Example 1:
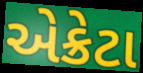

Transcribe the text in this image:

એક્રેટા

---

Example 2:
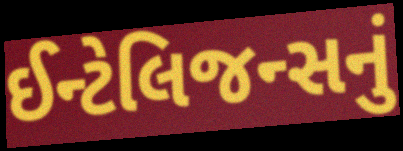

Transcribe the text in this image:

ઈન્ટેલિજન્સનું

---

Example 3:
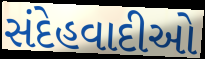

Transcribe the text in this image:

સંદેહવાદીઓ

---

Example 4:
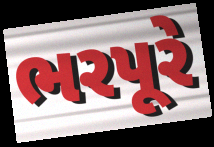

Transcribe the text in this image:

ભરપૂરે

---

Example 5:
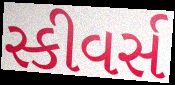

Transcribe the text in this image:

સ્કીવર્સ